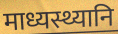
माध्यस्थ्यानि